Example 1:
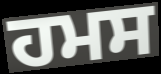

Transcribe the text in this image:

ਹਮਸ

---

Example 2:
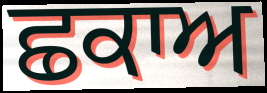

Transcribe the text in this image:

ਛਕਾਅ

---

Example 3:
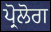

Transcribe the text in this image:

ਪ੍ਰੋਲੋਗ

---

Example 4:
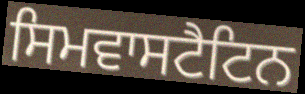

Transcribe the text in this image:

ਸਿਮਵਾਸਟੈਟਿਨ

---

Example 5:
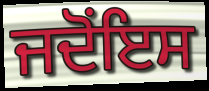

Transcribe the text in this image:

ਜਦੋਂਇਸ